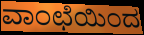
ವಾಂಛೆಯಿಂದ